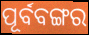
ପୂର୍ବବଙ୍ଗର